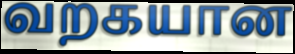
வறகயான